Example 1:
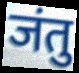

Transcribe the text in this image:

जंतु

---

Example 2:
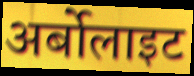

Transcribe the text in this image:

अर्बोलाइट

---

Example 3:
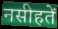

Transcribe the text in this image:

नसीहतें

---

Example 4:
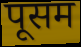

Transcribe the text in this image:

पूसम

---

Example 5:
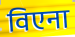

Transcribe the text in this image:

विएना